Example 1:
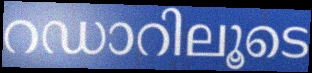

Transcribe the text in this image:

റഡാറിലൂടെ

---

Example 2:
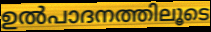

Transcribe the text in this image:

ഉൽപാദനത്തിലൂടെ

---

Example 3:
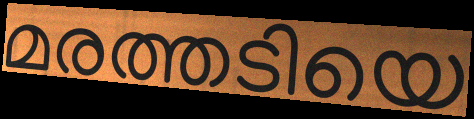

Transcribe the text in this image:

മരത്തടിയെ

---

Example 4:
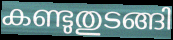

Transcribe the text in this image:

കണ്ടുതുടങ്ങി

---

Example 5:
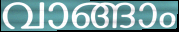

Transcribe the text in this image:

വാങ്ങാം